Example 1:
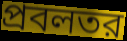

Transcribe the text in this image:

প্রবলতর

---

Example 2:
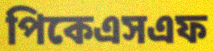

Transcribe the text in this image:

পিকেএসএফ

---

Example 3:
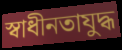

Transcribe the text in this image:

স্বাধীনতাযুদ্ধ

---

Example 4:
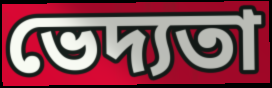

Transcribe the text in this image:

ভেদ্যতা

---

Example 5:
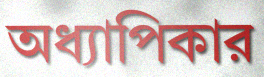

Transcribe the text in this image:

অধ্যাপিকার